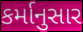
કર્માનુસાર